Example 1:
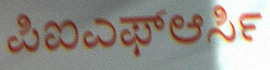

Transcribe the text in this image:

ಪಿಐಎಫ್ಆರ್ಸಿ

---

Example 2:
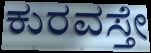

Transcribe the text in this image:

ಕುರವಸ್ತೇ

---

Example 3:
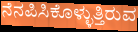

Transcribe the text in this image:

ನೆನಪಿಸಿಕೊಳ್ಳುತ್ತಿರುವ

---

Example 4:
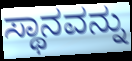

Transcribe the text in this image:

ಸ್ಥಾನವನ್ನು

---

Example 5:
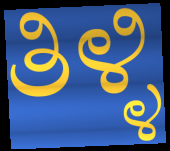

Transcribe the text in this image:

ತಿಳ್ಳಿ